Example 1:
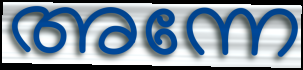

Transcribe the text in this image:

അന്നേ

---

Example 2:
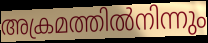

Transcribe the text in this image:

അക്രമത്തിൽനിന്നും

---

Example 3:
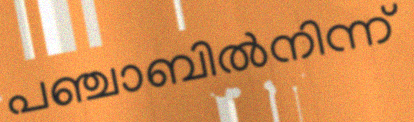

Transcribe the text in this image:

പഞ്ചാബിൽനിന്ന്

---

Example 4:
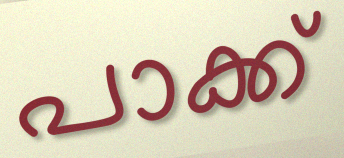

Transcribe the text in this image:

പാക്ക്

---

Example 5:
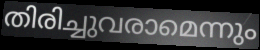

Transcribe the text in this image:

തിരിച്ചുവരാമെന്നും